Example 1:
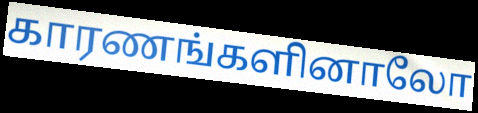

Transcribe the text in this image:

காரணங்களினாலோ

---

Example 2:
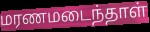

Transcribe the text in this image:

மரணமடைந்தாள்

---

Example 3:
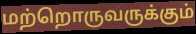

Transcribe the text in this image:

மற்றொருவருக்கும்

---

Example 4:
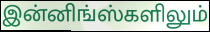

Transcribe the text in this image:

இன்னிங்ஸ்களிலும்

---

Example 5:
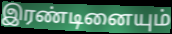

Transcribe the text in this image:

இரண்டினையும்